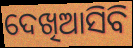
ଦେଖିଆସିବି